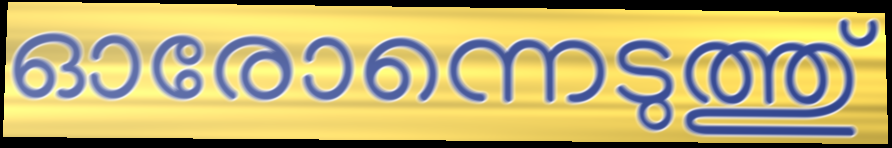
ഓരോന്നെടുത്തു്